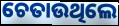
ଚେତାଉଥିଲେ